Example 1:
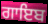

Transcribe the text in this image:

ਗਾਇਬ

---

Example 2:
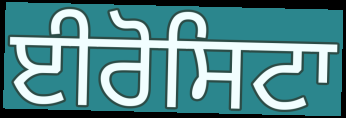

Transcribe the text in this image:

ਈਰੋਸਿਟਾ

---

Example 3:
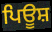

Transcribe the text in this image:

ਪਿਊਸ਼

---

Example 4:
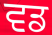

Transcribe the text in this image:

ਵਡ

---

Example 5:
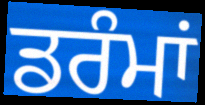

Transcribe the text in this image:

ਡਰੰਮਾਂ